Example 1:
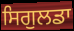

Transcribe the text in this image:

ਸਿਗੁਲਡਾ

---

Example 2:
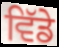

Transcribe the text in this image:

ਵਿੱਡੇ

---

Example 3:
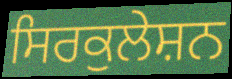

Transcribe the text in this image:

ਸਿਰਕੁਲੇਸ਼ਨ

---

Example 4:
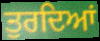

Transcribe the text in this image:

ਤੁਰਦਿਆਂ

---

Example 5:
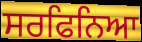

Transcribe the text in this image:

ਸਰਫਿਨਿਆ